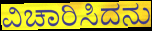
ವಿಚಾರಿಸಿದನು